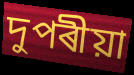
দুপৰীয়া